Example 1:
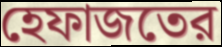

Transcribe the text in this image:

হেফাজতের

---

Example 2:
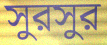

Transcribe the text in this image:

সুরসুর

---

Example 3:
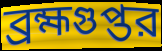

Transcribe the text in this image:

ব্রহ্মগুপ্তর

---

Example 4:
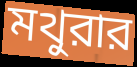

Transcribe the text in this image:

মথুরার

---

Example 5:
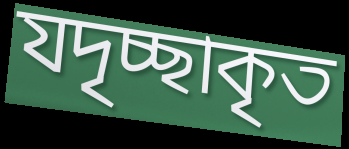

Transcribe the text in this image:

যদৃচ্ছাকৃত